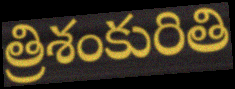
త్రిశంకురితి